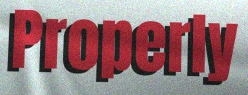
Properly